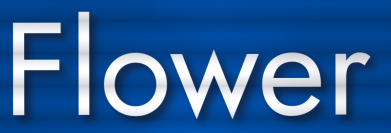
Flower